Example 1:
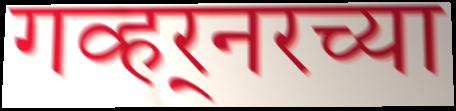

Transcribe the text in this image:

गव्हर्नरच्या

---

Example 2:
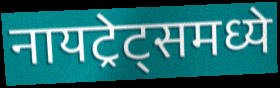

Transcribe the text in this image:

नायट्रेट्समध्ये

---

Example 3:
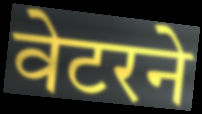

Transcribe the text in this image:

वेटरने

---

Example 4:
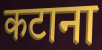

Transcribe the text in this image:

कटाना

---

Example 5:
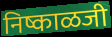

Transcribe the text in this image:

निष्काळजी